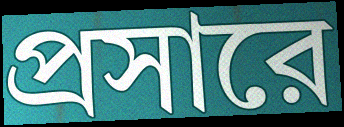
প্রসারে